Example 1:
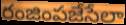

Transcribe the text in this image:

రంజింపజేసేలా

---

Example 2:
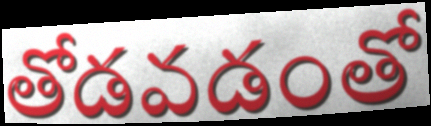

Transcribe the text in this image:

తోడవడంతో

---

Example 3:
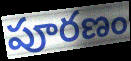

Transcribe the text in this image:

పూరణం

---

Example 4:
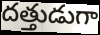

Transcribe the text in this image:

దత్తుడుగా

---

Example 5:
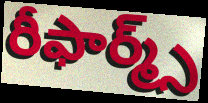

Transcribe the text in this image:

రీఫార్మ్స్